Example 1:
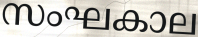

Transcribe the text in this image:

സംഘകാല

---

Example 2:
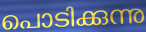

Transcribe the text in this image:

പൊടിക്കുന്നു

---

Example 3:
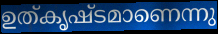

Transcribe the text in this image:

ഉത്കൃഷ്ടമാണെന്നു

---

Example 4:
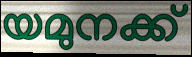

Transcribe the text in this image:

യമുനക്ക്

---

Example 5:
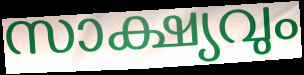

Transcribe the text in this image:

സാക്ഷ്യവും